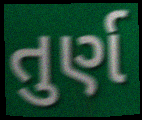
તુર્ણ